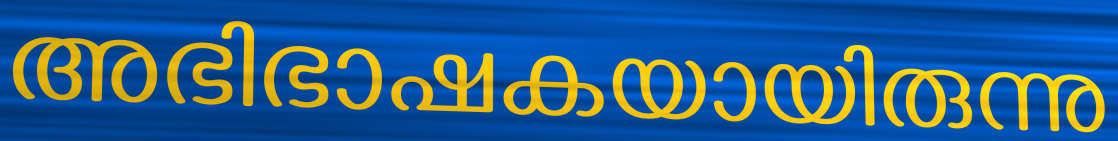
അഭിഭാഷകയായിരുന്നു